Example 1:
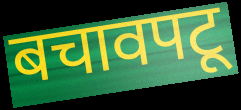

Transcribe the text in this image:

बचावपटू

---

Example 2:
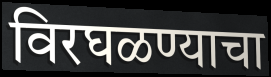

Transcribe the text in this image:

विरघळण्याचा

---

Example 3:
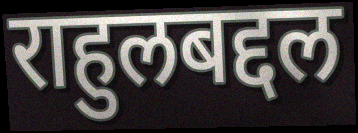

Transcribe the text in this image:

राहुलबद्दल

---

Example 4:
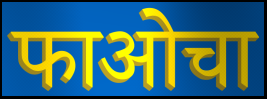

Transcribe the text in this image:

फाओचा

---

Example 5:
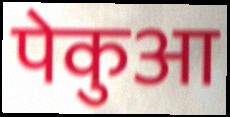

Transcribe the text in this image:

पेकुआ